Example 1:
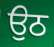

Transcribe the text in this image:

ਉਠ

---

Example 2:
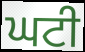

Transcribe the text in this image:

ਘਟੀ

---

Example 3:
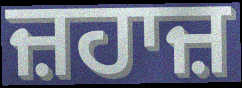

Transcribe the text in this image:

ਜ਼ਹਾਜ਼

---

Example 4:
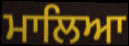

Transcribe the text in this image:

ਮਾਲਿਆ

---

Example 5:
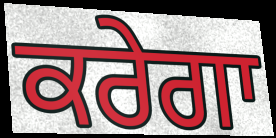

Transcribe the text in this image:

ਕਰੇਗਾ